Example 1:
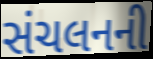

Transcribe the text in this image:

સંચલનની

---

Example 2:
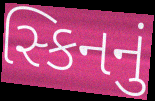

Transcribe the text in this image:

સ્કિનનું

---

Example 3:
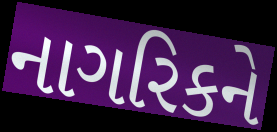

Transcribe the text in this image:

નાગરિકને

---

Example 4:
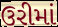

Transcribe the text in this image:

ઉરીમાં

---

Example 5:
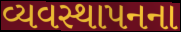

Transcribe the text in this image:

વ્યવસ્થાપનના